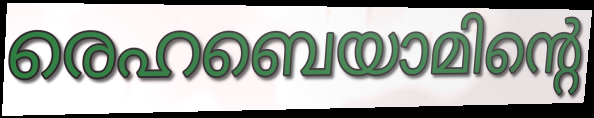
രെഹബെയാമിന്റെ